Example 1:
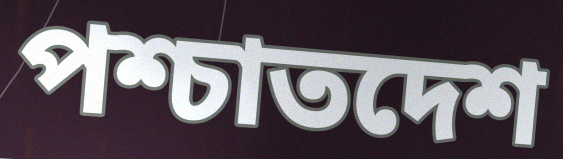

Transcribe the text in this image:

পশ্চাতদেশ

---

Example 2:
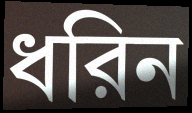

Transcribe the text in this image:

ধরিন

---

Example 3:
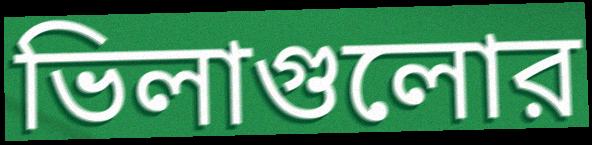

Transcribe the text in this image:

ভিলাগুলোর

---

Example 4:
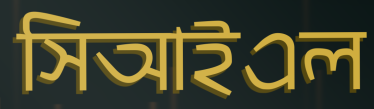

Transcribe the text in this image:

সিআইএল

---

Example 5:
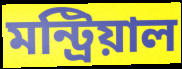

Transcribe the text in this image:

মন্ট্রিয়াল